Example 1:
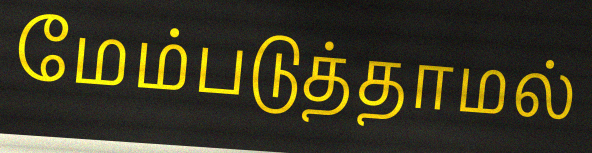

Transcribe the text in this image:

மேம்படுத்தாமல்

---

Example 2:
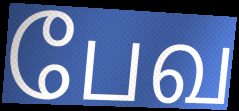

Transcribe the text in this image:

பேவ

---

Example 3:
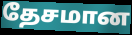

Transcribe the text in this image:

தேசமான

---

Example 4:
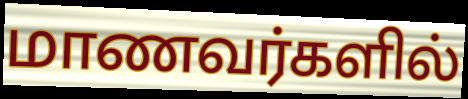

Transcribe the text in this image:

மாணவர்களில்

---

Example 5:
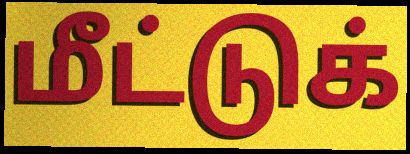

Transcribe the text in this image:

மீட்டுக்